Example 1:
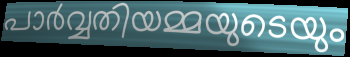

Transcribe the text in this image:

പാർവ്വതിയമ്മയുടെയും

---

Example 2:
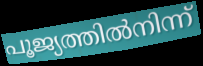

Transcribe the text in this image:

പൂജ്യത്തിൽനിന്ന്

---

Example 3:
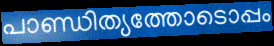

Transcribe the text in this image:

പാണ്ഡിത്യത്തോടൊപ്പം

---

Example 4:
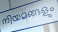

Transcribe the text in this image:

നിയമങ്ങളും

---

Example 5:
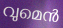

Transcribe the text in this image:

വുമെൻ